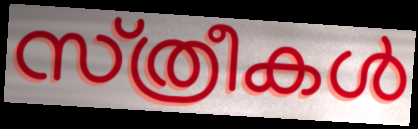
സ്‌ത്രീകൾ